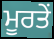
ਮੂਰਤੇਂ